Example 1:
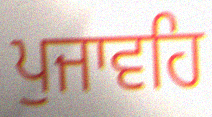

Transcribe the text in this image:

ਪੁਜਾਵਹਿ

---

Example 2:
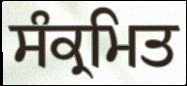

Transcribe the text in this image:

ਸੰਕ੍ਰਮਿਤ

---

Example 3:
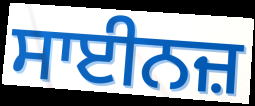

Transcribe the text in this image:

ਸਾਈਨਜ਼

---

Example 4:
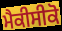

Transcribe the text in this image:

ਮੈਕੀਸੀਕੋ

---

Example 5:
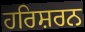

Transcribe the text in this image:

ਹਰਿਸ਼ਰਨ